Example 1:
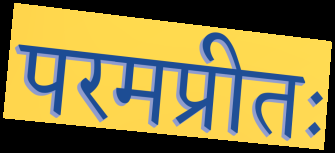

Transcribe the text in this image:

परमप्रीतः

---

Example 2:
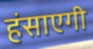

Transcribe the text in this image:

हंसाएगी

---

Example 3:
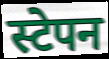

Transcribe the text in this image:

स्टेपन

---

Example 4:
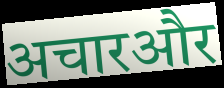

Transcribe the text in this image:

अचारऔर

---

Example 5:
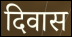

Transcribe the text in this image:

दिवास